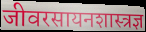
जीवरसायनशास्त्रज्ञ